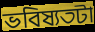
ভবিষ্যতটা